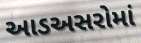
આડઅસરોમાં